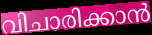
വിചാരിക്കാൻ